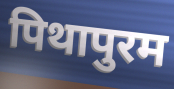
पिथापुरम